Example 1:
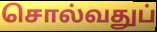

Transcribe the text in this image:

சொல்வதுப்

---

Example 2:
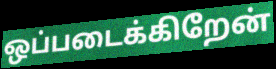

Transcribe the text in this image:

ஒப்படைக்கிறேன்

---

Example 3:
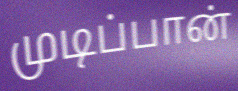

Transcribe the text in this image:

முடிப்பான்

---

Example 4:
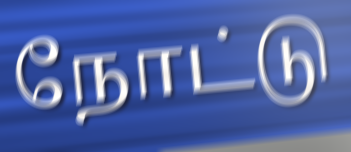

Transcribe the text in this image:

நோட்டு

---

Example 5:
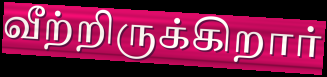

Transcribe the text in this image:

வீற்றிருக்கிறார்